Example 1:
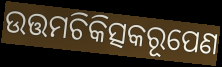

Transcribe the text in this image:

ଉତ୍ତମଚିକିତ୍ସକରୂପେଣ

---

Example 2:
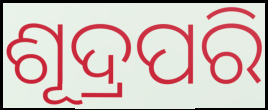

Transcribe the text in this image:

ଶୂଦ୍ରପରି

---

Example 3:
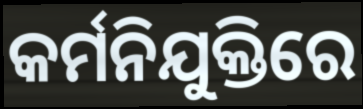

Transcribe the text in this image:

କର୍ମନିଯୁକ୍ତିରେ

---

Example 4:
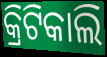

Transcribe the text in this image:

କ୍ରିଟିକାଲି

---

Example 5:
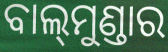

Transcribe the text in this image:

ବାଲ୍‍ମୁଣ୍ଡାର